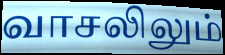
வாசலிலும்